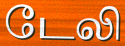
டேலி